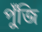
পুঁজি